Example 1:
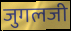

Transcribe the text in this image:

जुगलजी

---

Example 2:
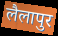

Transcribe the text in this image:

लैलापुर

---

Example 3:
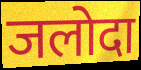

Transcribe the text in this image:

जलोदा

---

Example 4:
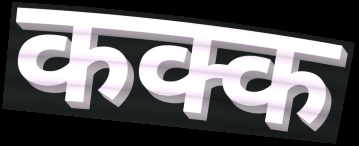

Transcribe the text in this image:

कक्क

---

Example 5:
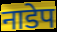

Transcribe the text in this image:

नाडेप